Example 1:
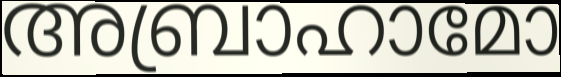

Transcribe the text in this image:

അബ്രാഹാമോ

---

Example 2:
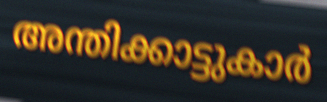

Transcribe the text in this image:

അന്തിക്കാട്ടുകാർ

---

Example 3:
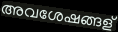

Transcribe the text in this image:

അവശേഷങ്ങള്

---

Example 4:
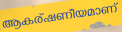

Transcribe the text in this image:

ആകര്ഷണീയമാണ്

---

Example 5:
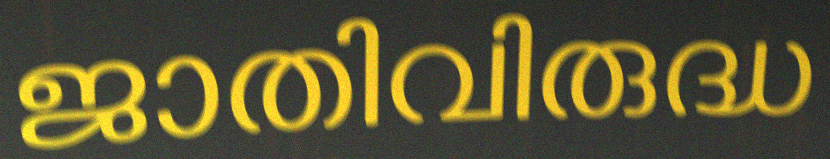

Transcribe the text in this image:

ജാതിവിരുദ്ധ